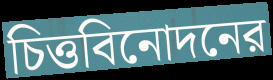
চিত্তবিনোদনের